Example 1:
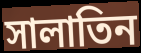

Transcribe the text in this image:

সালাতিন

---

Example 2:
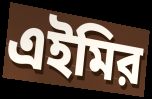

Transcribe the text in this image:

এইমির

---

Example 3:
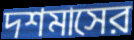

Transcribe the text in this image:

দশমাসের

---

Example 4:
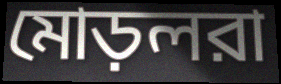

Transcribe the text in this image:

মোড়লরা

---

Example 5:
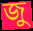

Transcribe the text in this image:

জু